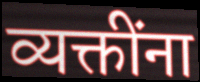
व्यक्तींना